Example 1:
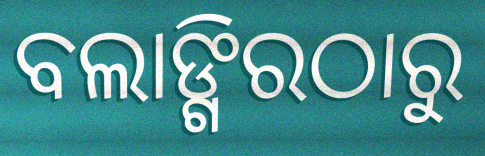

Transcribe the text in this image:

ବଲାଙ୍ଗିରଠାରୁ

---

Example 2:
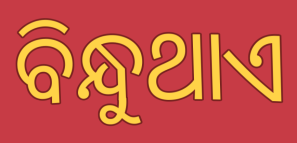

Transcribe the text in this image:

ବିନ୍ଧୁଥାଏ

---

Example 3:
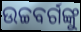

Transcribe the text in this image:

ଉଚ୍ଚବର୍ଗଙ୍କୁ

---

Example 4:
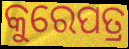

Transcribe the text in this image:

କୁରେପତ୍ର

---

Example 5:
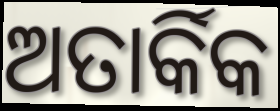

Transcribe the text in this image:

ଅତାର୍କିକ